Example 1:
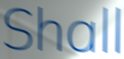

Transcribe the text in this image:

Shall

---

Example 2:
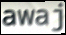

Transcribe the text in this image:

awaj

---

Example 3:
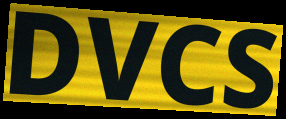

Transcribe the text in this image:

DVCS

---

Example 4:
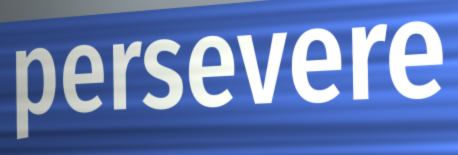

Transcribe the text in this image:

persevere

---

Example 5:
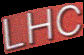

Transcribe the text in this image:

LHC